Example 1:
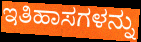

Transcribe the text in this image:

ಇತಿಹಾಸಗಳನ್ನು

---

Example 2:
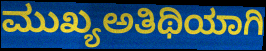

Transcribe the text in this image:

ಮುಖ್ಯಅತಿಥಿಯಾಗಿ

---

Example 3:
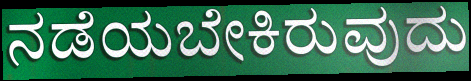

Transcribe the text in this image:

ನಡೆಯಬೇಕಿರುವುದು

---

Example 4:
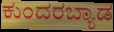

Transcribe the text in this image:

ಕುಂದರಬ್ಯಾಡ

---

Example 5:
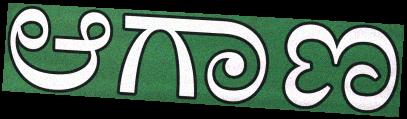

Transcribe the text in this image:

ಆಗಾಣ